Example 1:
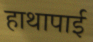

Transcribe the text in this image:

हाथापाई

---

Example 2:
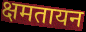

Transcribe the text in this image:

क्षमतायन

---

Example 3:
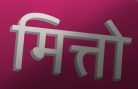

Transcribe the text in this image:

मित्तो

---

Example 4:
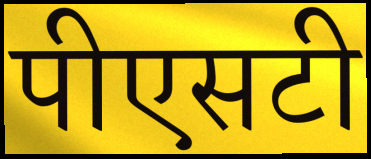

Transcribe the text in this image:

पीएसटी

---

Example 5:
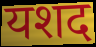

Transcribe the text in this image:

यशद